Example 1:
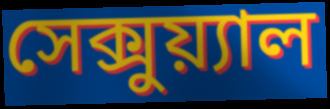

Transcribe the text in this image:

সেক্সুয়্যাল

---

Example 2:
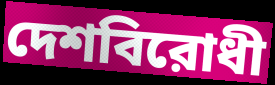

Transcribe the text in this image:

দেশবিরোধী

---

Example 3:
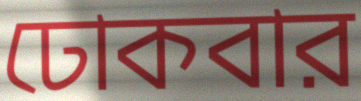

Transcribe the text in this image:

ঢোকবার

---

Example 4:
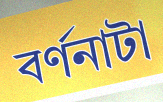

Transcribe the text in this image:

বর্ণনাটা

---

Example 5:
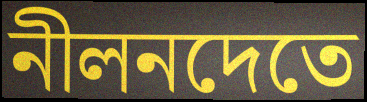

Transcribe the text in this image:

নীলনদেতে